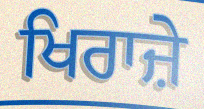
ਖਿਰਾਜ਼ੇ